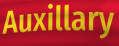
Auxillary